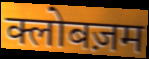
क्लोबज़म